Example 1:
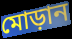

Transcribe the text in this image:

মোড়ান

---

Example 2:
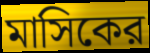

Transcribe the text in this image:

মাসিকের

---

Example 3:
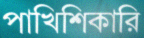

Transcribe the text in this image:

পাখিশিকারি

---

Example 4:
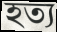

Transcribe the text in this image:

হত্য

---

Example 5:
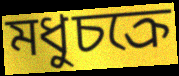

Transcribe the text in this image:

মধুচক্রে